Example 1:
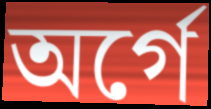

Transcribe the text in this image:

অর্গে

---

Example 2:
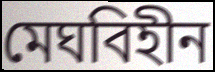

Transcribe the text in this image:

মেঘবিহীন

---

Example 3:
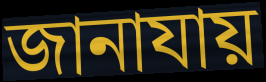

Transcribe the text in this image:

জানাযায়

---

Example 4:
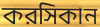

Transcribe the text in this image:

করসিকান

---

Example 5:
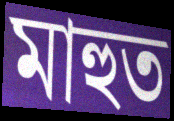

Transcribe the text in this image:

মাহুত